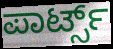
ಪಾರ್ಟ್ಸ್